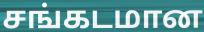
சங்கடமான